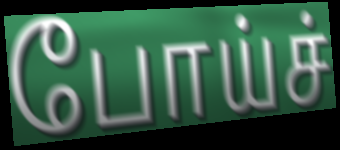
போய்ச்